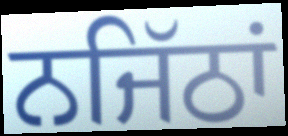
ਨਜਿੱਠਾਂ